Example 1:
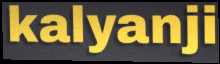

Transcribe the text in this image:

kalyanji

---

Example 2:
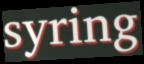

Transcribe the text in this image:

syring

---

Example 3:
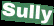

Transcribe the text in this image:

Sully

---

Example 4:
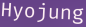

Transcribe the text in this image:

Hyojung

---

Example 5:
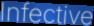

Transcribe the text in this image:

Infective